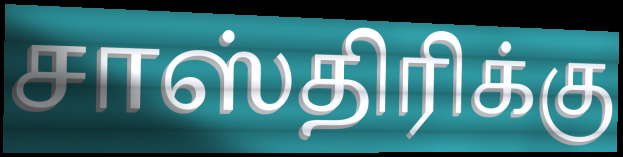
சாஸ்திரிக்கு